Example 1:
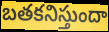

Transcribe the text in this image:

బతకనిస్తుందా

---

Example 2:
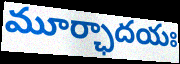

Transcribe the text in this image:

మూర్ఛాదయః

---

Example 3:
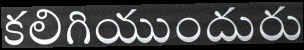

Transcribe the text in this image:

కలిగియుందురు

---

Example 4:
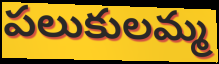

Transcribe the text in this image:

పలుకులమ్మ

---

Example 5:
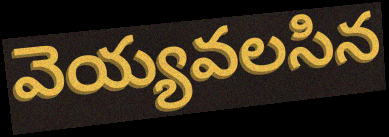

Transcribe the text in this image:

వెయ్యవలసిన